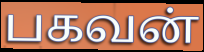
பகவன்